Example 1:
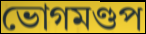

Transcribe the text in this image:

ভোগমণ্ডপ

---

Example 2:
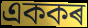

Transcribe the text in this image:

এককৰ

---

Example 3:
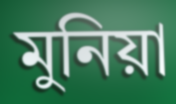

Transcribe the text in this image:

মুনিয়া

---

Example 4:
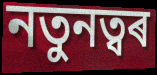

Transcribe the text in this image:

নতুনত্বৰ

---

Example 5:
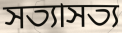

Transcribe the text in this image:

সত্যাসত্য